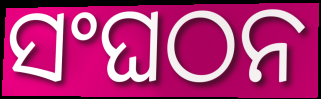
ସଂଘଠନ